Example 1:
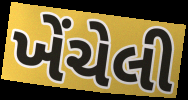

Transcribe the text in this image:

ખેંચેલી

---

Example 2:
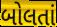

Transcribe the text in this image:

બોલતાં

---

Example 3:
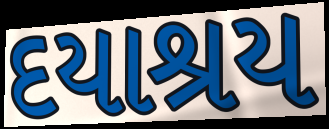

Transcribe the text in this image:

દયાશ્રય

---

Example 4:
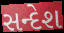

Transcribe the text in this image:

સન્દેશ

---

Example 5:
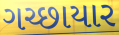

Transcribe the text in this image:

ગચ્છાયાર